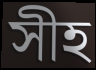
সীহ